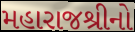
મહારાજશ્રીનો